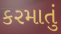
કરમાતું